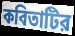
কবিতাটির